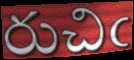
రుచిఁ